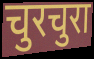
चुरचुरा